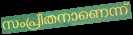
സംപ്രീതനാണെന്ന്